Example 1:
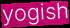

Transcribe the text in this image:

yogish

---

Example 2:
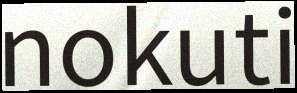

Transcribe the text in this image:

nokuti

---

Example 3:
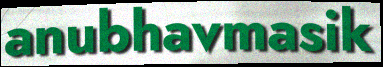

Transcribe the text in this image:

anubhavmasik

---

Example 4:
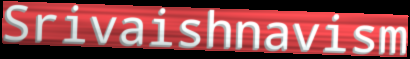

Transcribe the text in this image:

Srivaishnavism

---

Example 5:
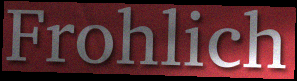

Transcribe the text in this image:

Frohlich